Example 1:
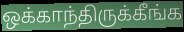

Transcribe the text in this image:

ஒக்காந்திருக்கீங்க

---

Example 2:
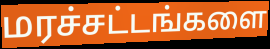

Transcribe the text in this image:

மரச்சட்டங்களை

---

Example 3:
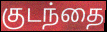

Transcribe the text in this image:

குடந்தை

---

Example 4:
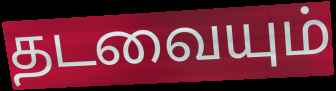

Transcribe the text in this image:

தடவையும்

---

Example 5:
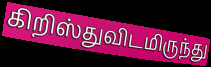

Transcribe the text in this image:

கிறிஸ்துவிடமிருந்து